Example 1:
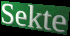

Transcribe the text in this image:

Sekte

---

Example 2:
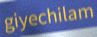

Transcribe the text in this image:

giyechilam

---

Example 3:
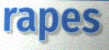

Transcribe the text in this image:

rapes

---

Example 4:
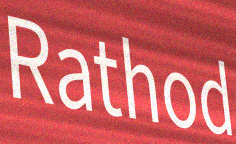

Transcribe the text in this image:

Rathod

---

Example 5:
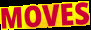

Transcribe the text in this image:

MOVES